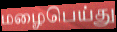
மழைபெய்து